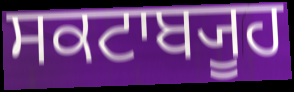
ਸਕਟਾਬ੍ਯੂਹ